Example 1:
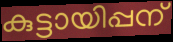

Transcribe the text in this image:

കുട്ടായിപ്പന്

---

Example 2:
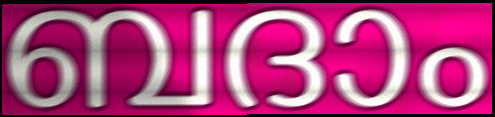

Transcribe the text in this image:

ബദാം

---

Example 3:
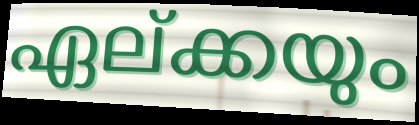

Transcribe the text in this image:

ഏല്ക്കയും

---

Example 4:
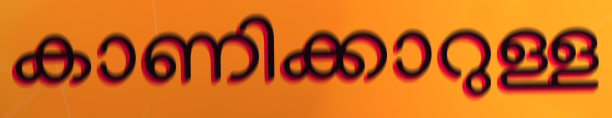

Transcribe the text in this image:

കാണിക്കാറുള്ള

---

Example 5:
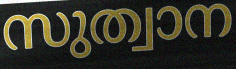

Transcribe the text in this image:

സുത്വാന